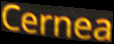
Cernea